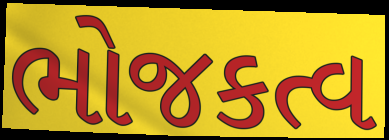
ભોજકત્વ